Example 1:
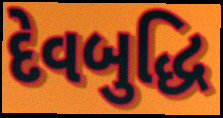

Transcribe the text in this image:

દેવબુદ્ધિ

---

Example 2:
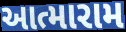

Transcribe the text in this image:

આત્મારામ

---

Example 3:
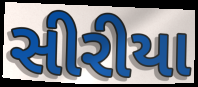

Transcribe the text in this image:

સીરીયા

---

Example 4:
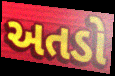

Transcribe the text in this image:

અતડો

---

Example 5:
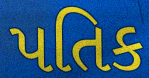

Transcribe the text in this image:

પતિક